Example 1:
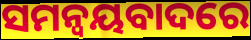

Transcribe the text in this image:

ସମନ୍ୱୟବାଦରେ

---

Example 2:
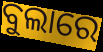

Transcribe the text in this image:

ବୁଲାରେ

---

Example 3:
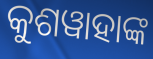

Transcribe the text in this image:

କୁଶୱାହାଙ୍କ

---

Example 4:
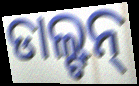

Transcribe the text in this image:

ଡାଲ୍ଟନ୍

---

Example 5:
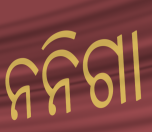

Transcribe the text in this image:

ନନିଗା